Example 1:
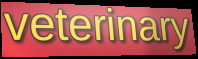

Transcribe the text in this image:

veterinary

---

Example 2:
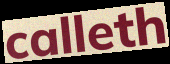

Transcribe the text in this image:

calleth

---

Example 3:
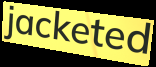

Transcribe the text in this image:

jacketed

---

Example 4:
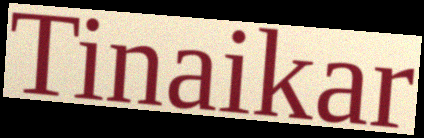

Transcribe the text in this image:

Tinaikar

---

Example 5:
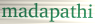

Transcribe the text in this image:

madapathi